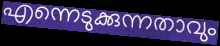
എന്നെടുക്കുന്നതാവും